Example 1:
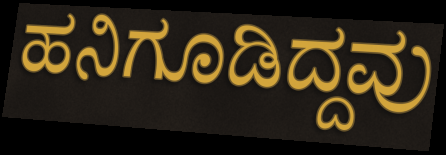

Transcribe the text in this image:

ಹನಿಗೂಡಿದ್ದವು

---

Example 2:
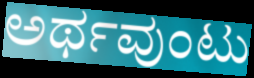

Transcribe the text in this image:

ಅರ್ಥವುಂಟು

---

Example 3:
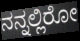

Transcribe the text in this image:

ನನ್ನಲ್ಲಿರೋ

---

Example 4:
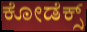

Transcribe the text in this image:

ಕೋಡೆಕ್ಸ್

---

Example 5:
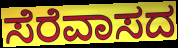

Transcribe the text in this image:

ಸೆರೆವಾಸದ